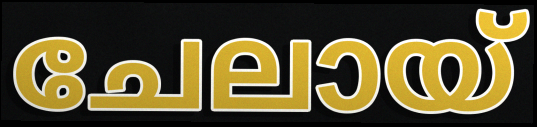
ചേലായ്